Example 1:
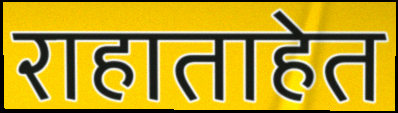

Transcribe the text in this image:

राहाताहेत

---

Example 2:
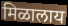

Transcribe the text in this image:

मिळालाय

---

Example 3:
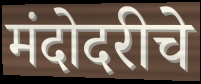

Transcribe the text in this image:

मंदोदरीचे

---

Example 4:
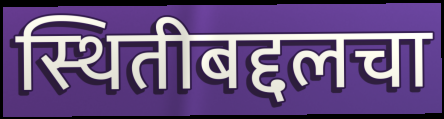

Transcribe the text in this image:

स्थितीबद्दलचा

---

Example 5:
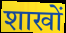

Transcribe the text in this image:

शाखों